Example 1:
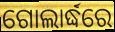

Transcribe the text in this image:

ଗୋଲାର୍ଦ୍ଧରେ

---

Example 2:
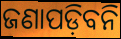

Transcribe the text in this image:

ଜଣାପଡ଼ିବନି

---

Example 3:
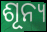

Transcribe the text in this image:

ଶୂନ୍ୟ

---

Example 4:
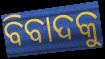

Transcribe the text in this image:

ବିବାଦକୁ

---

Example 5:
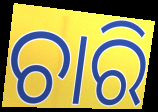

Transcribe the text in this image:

ଚାରି